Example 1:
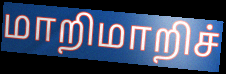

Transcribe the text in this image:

மாறிமாறிச்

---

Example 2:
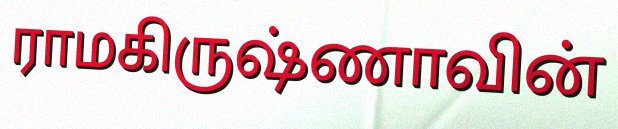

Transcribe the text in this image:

ராமகிருஷ்ணாவின்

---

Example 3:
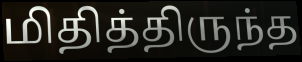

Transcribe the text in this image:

மிதித்திருந்த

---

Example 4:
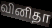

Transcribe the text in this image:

வினிதா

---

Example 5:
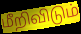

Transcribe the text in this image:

மீறிவிடும்